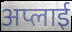
अप्‍लाई